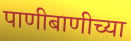
पाणीबाणीच्या